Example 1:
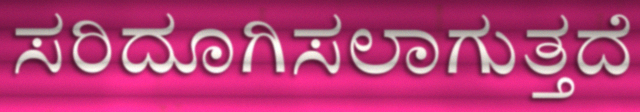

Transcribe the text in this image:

ಸರಿದೂಗಿಸಲಾಗುತ್ತದೆ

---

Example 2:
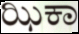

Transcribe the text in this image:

ಝಿಕಾ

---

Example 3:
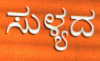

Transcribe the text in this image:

ಸುಳ್ಯದ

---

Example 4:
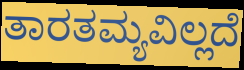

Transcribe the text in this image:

ತಾರತಮ್ಯವಿಲ್ಲದೆ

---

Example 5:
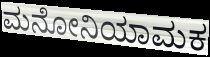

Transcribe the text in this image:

ಮನೋನಿಯಾಮಕ